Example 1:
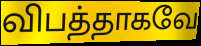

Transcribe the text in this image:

விபத்தாகவே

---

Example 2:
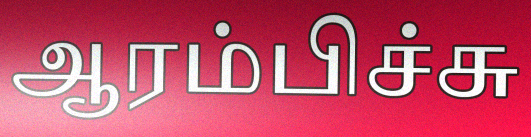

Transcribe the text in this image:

ஆரம்பிச்சு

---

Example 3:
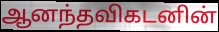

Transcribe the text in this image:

ஆனந்தவிகடனின்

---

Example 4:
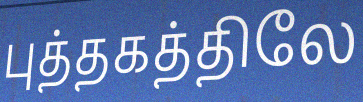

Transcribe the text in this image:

புத்தகத்திலே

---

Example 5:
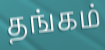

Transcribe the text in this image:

தங்கம்